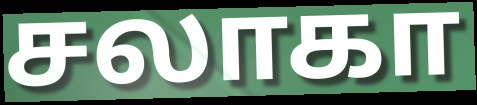
சலாகா